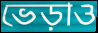
ভেড়াও